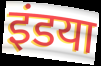
इंडया